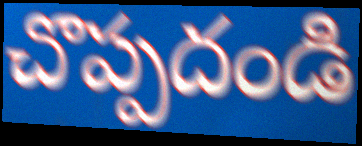
చొప్పదండి